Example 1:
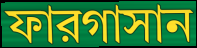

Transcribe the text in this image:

ফারগাসান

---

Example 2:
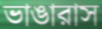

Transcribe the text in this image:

ভাঙারাস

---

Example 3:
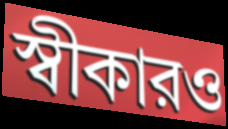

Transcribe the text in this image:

স্বীকারও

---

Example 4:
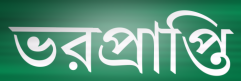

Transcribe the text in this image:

ভরপ্রাপ্তি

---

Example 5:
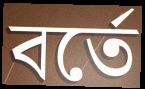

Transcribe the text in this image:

বর্তে